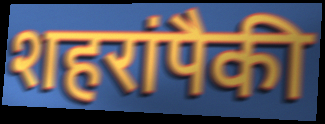
शहरांपैकी